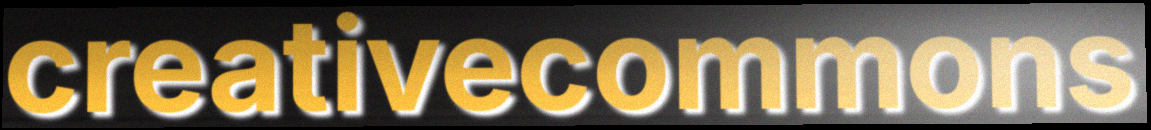
creativecommons